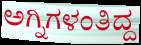
ಅಗ್ನಿಗಳಂತಿದ್ದ